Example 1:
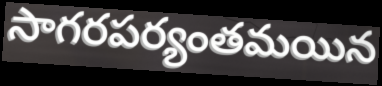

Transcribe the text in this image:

సాగరపర్యంతమయిన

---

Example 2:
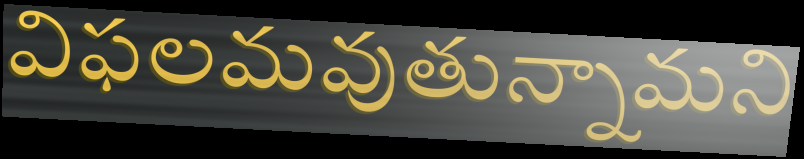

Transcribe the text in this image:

విఫలమవుతున్నామని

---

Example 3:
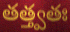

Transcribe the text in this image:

తత్త్వతః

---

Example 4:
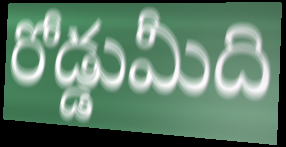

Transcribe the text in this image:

రోడ్డుమీది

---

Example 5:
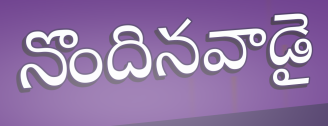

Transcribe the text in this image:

నొందినవాడై